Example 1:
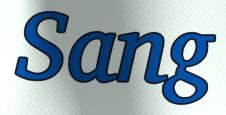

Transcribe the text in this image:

Sang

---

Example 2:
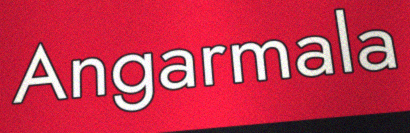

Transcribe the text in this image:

Angarmala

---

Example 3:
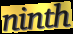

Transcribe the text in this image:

ninth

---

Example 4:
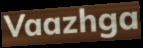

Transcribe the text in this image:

Vaazhga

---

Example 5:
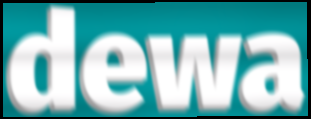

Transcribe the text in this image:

dewa